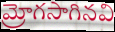
మ్రోగసాగినవి